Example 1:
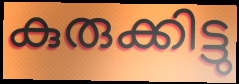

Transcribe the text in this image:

കുരുക്കിട്ടു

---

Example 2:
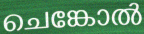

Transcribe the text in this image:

ചെങ്കോൽ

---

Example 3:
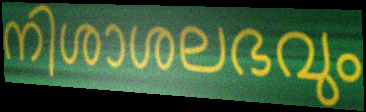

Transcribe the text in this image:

നിശാശലഭവും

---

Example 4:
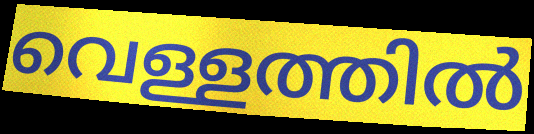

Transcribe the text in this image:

വെള്ളത്തിൽ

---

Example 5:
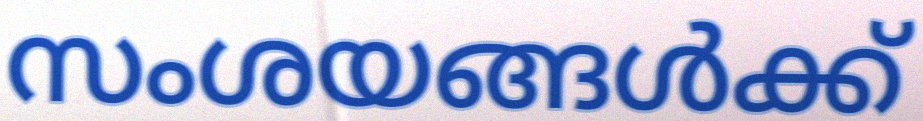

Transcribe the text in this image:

സംശയങ്ങൾക്ക്